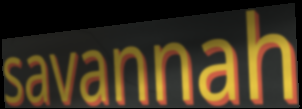
savannah